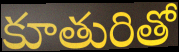
కూతురితో